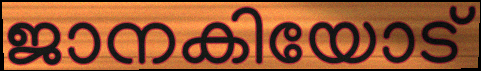
ജാനകിയോട്